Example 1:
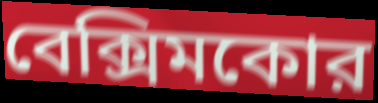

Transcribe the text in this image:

বেক্সিমকোর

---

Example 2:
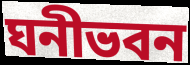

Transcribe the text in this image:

ঘনীভবন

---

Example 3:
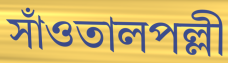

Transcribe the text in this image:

সাঁওতালপল্লী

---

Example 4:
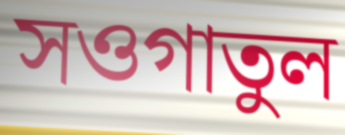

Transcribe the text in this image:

সওগাতুল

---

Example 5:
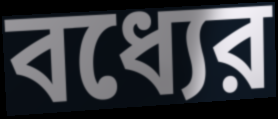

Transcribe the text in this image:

বধ্যের